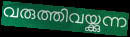
വരുത്തിവയ്ക്കുന്ന